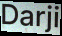
Darji